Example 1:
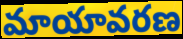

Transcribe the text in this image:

మాయావరణ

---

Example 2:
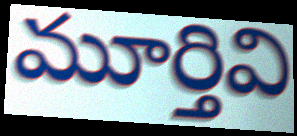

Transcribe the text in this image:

మూర్తివి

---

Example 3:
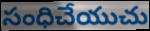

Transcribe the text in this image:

సంధిచేయుచు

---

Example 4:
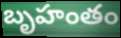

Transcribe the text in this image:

బృహంతం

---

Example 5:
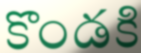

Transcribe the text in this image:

కొండకి